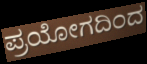
ಪ್ರಯೋಗದಿಂದ